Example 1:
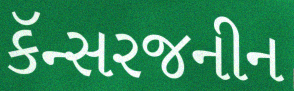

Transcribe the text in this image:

કૅન્સરજનીન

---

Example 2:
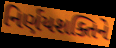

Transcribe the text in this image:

નિર્ણયશક્તિને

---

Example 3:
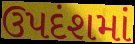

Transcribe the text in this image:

ઉપદંશમાં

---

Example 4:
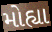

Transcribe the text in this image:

મોહ્યા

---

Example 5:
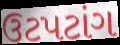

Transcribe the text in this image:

ઉટપટાંગ